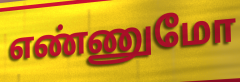
எண்ணுமோ